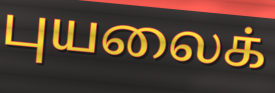
புயலைக்